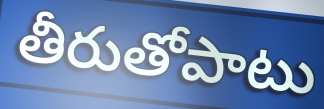
తీరుతోపాటు